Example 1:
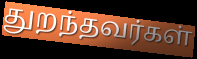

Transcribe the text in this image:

துறந்தவர்கள்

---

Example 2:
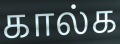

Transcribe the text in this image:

கால்க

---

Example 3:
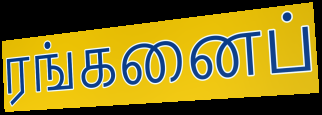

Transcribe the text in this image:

ரங்கனைப்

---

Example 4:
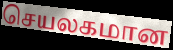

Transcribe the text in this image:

செயலகமான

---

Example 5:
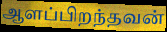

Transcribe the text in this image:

ஆளப்பிறந்தவன்